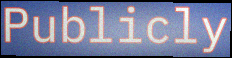
Publicly